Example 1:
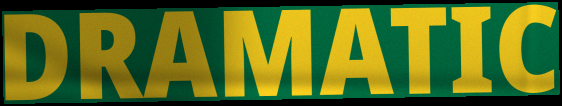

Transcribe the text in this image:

DRAMATIC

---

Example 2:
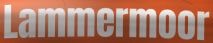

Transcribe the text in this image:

Lammermoor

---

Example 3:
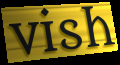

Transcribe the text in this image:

vish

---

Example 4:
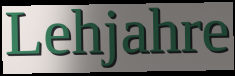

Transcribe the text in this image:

Lehjahre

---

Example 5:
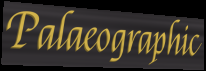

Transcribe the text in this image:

Palaeographic